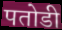
पतोडी